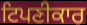
ਟਿਪਣੀਕਾਰ